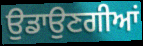
ਉਡਾਉਣਗੀਆਂ